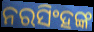
ନରସିଂହଙ୍କ